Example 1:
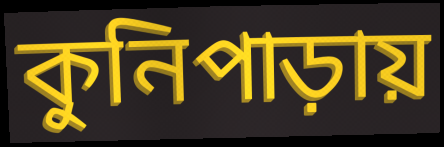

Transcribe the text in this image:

কুনিপাড়ায়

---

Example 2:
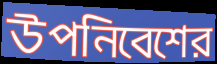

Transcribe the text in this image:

উপনিবেশের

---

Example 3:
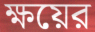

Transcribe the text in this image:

ক্ষয়ের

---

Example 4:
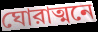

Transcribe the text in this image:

ঘোরাত্মনে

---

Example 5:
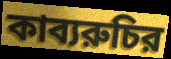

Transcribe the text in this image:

কাব্যরুচির